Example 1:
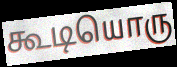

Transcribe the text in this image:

கூடியொரு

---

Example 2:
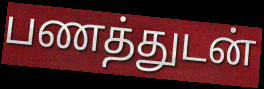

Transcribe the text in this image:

பணத்துடன்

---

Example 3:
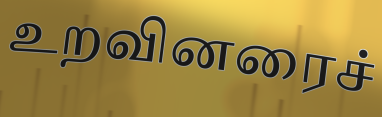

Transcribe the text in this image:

உறவினரைச்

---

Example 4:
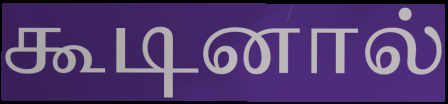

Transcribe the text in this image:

கூடினால்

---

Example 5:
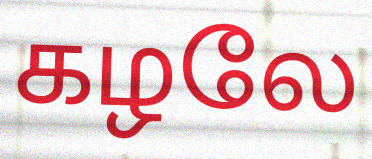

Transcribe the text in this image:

கழலே